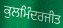
ਕੁਲਮਿੰਦਰਜੀਤ